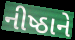
નીષ્ઠાને